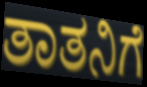
ತಾತನಿಗೆ